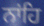
ਨਾਂਹਿ